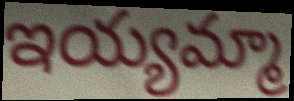
ఇయ్యమ్మా